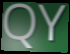
QY